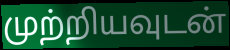
முற்றியவுடன்